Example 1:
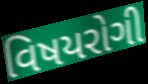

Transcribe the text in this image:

વિષયરોગી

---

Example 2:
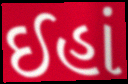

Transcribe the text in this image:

ઈહાં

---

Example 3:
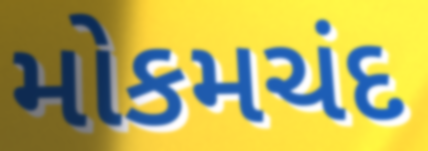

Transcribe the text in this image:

મોકમચંદ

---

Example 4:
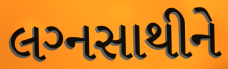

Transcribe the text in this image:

લગ્‍નસાથીને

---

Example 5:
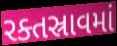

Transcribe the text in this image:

રક્તસ્રાવમાં